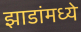
झाडांमध्ये